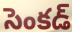
సెంకడ్